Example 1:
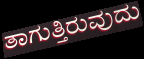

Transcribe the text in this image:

ತಾಗುತ್ತಿರುವುದು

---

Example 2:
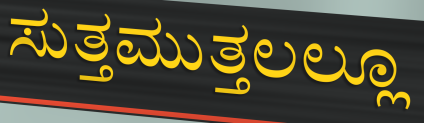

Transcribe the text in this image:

ಸುತ್ತಮುತ್ತಲಲ್ಲೂ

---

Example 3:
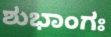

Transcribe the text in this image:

ಶುಭಾಂಗಃ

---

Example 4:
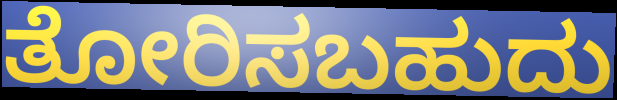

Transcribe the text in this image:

ತೋರಿಸಬಹುದು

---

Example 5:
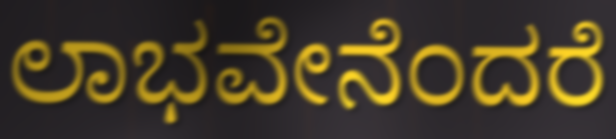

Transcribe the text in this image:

ಲಾಭವೇನೆಂದರೆ